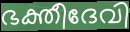
ഭക്തീദേവി